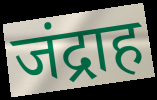
जंद्राह